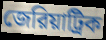
জেরিয়াট্রিক